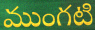
ముంగటి